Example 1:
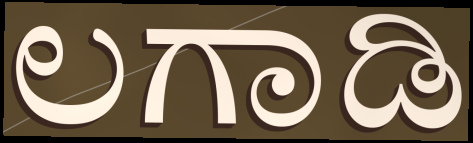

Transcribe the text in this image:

ಲಗಾಡಿ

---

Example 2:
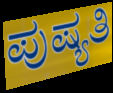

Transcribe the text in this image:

ಪುಷ್ಯತಿ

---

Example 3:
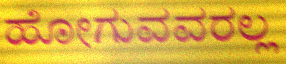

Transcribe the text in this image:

ಹೋಗುವವರಲ್ಲ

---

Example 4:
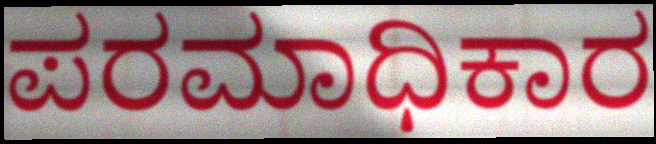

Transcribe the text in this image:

ಪರಮಾಧಿಕಾರ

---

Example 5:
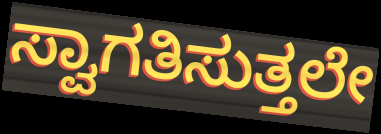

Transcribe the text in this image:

ಸ್ವಾಗತಿಸುತ್ತಲೇ